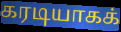
கரடியாகக்